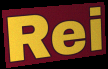
Rei